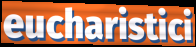
eucharistici